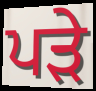
ਪੜੇ